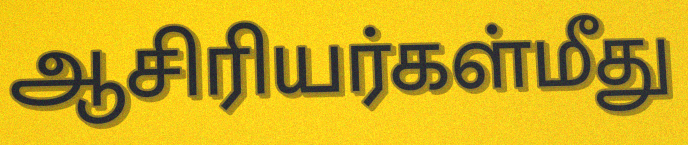
ஆசிரியர்கள்மீது